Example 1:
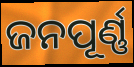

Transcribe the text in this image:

ଜନପୂର୍ଣ୍ଣ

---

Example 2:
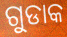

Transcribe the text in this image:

ଗୁଡାକ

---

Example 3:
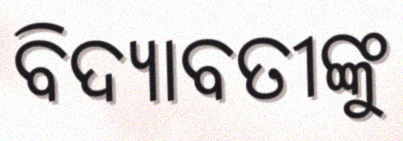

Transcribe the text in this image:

ବିଦ୍ୟାବତୀଙ୍କୁ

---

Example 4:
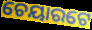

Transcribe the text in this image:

ଚେୟାରଟେ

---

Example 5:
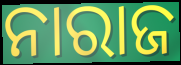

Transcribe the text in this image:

ନାରାଜ